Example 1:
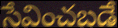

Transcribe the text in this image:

సేవించబడే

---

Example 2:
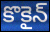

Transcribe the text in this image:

కొకైన్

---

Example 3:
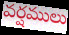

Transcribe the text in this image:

వర్షములు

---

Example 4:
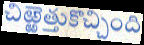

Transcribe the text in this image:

చిఱ్ఱెత్తుకొచ్చింది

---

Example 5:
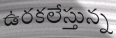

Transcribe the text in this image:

ఉరకలేస్తున్న